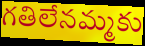
గతిలేనమ్మకు